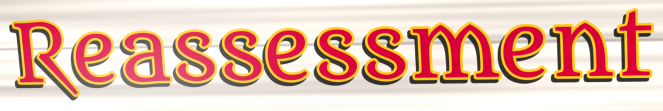
Reassessment